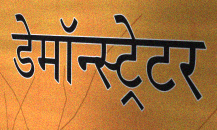
डेमॉन्स्ट्रेटर